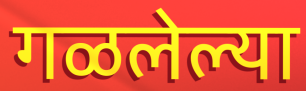
गळलेल्या